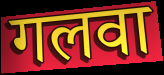
गलवा